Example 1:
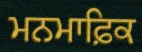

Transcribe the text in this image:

ਮਨਮਾਫ਼ਿਕ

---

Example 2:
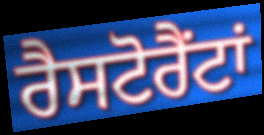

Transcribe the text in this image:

ਰੈਸਟੋਰੈਂਟਾਂ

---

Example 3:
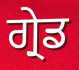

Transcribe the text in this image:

ਗ੍ਰੇਡ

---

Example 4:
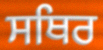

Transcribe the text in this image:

ਸਥਿਰ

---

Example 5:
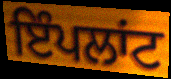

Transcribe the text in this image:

ਇੰਪਲਾਂਟ